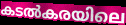
കടൽകരയിലെ